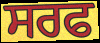
ਸਰਫ